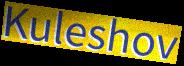
Kuleshov